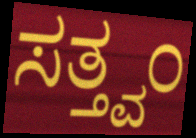
ಸತ್ತ್ವಂ